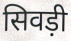
सिवड़ी